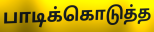
பாடிக்கொடுத்த